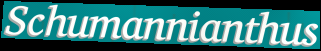
Schumannianthus